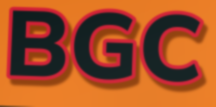
BGC